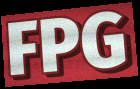
FPG